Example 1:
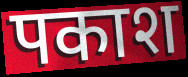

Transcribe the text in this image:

पकाश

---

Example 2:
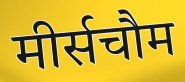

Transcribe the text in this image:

मीर्सचौम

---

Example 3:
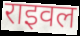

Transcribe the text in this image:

राइवल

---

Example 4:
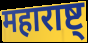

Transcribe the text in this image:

महाराष्ट्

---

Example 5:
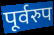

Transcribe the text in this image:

पूर्वरुप